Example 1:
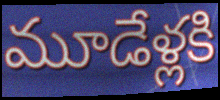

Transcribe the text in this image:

మూడేళ్లకి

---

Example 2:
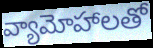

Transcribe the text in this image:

వ్యామోహాలతో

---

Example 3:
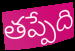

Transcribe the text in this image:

తప్పేది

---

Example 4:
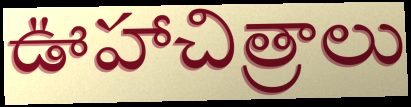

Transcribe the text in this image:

ఊహాచిత్రాలు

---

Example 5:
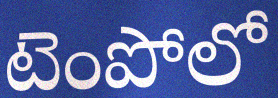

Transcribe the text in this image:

టెంపోలో